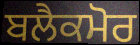
ਬਲੈਕਮੋਰ